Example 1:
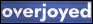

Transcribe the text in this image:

overjoyed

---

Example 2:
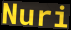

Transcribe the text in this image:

Nuri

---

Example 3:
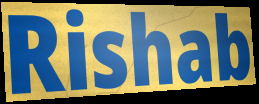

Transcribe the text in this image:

Rishab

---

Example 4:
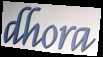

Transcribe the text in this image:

dhora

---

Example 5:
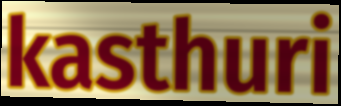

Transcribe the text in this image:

kasthuri